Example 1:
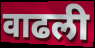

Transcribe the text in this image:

वाढली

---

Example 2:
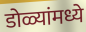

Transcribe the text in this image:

डोळ्यांमध्ये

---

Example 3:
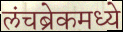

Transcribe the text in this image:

लंचब्रेकमध्ये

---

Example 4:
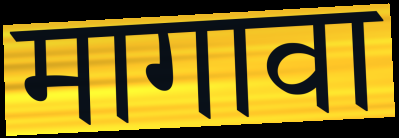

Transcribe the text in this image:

मागावा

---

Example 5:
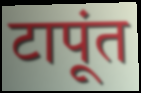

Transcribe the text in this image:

टापूंत